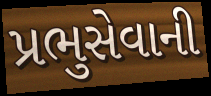
પ્રભુસેવાની